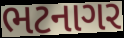
ભટનાગર